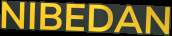
NIBEDAN